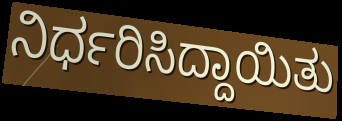
ನಿರ್ಧರಿಸಿದ್ದಾಯಿತು